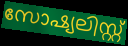
സോഷ്യലിസ്റ്റ്